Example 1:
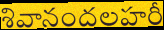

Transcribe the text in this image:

శివానందలహరీ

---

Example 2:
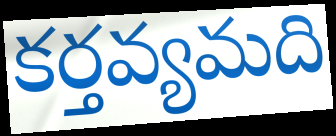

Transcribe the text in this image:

కర్తవ్యమది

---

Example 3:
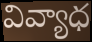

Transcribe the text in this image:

వివ్యాధ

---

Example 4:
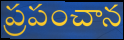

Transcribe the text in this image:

ప్రపంచాన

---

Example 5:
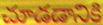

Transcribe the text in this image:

చూడడానికి